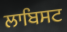
ਲਾਬਿਸਟ